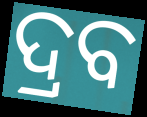
ଦ୍ରବ